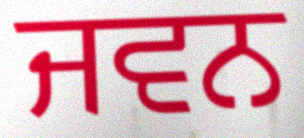
ਜਵਨ